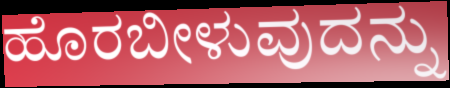
ಹೊರಬೀಳುವುದನ್ನು